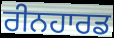
ਰੀਨਹਾਰਡ